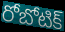
రోబోటిక్